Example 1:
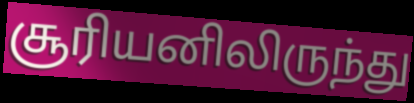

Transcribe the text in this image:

சூரியனிலிருந்து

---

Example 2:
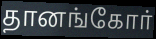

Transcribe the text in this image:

தானங்கோர்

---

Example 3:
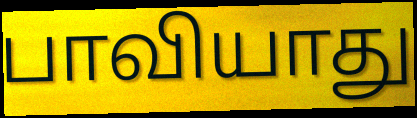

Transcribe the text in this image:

பாவியாது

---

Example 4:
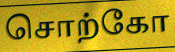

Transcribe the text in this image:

சொற்கோ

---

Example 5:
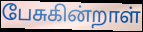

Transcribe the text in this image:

பேசுகின்றாள்